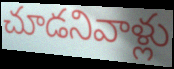
చూడనివాళ్లు